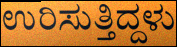
ಉರಿಸುತ್ತಿದ್ದಳು